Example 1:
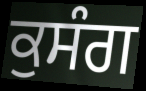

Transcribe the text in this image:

ਕੁਸੰਗ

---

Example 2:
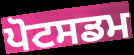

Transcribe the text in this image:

ਪੋਟਸਡਮ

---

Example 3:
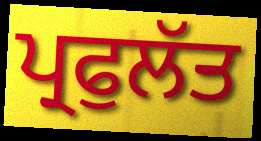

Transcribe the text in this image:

ਪ੍ਰਫੁਲੱਤ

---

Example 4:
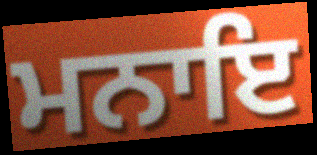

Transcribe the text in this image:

ਮਨਾਇ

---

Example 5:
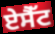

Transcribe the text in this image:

ਏਸੈੱਟ